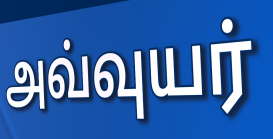
அவ்வுயர்